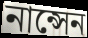
নান্সেন